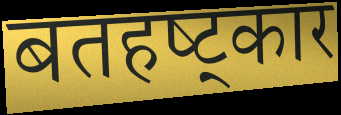
बतहष्ट्कार